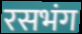
रसभंग